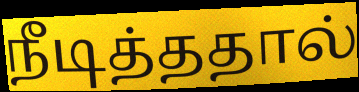
நீடித்ததால்